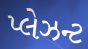
પ્લેઝન્ટ